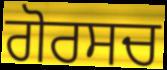
ਗੋਰਸਚ